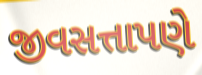
જીવસત્તાપણે